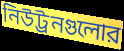
নিউট্রনগুলোর